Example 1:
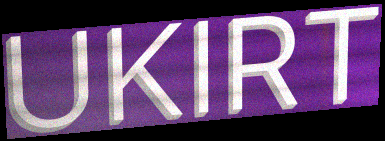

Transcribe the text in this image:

UKIRT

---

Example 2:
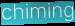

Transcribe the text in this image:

chiming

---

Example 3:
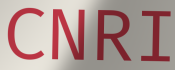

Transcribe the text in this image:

CNRI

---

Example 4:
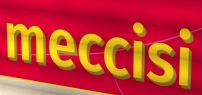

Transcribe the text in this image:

meccisi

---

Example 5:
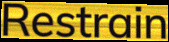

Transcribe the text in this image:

Restrain